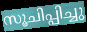
സൂചിപ്പിച്ചു